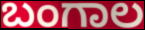
ಬಂಗಾಲ